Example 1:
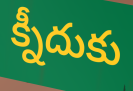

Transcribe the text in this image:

క్నీదుకు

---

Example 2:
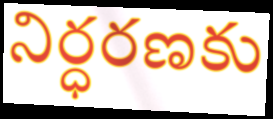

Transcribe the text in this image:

నిర్ధరణకు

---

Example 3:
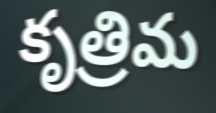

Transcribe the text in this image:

కృత్రిమ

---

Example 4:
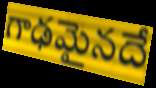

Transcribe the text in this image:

గాఢమైనదే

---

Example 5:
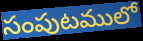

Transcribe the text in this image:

సంపుటములో